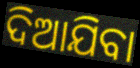
ଦିଆଯିବା